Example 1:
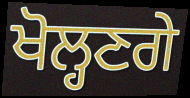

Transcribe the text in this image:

ਖੋਲ੍ਹਣਗੇ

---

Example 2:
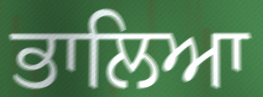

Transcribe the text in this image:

ਭਾਲਿਆ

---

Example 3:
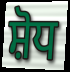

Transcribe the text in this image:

ਸ਼ੋਧ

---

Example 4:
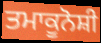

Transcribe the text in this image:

ਤਮਾਕੂਨੋਸ਼ੀ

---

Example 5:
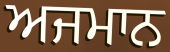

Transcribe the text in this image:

ਅਜਮਾਨ